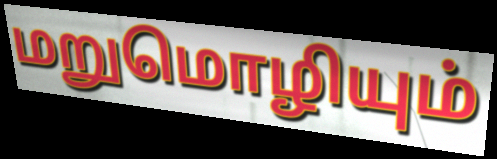
மறுமொழியும்